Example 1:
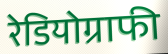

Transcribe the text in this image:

रेडियोग्राफी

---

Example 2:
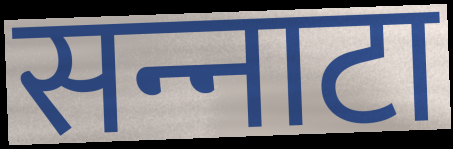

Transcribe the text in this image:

सन्‍नाटा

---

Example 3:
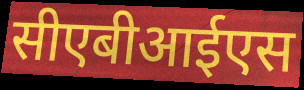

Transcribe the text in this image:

सीएबीआईएस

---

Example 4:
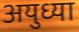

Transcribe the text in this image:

अयुध्या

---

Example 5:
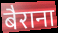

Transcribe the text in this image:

बैराना